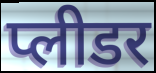
प्लीडर